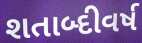
શતાબ્દીવર્ષ